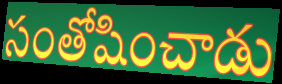
సంతోషించాడు